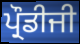
ਪ੍ਰੌਡੀਜੀ